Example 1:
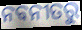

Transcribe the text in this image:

ନବନୀତରୁ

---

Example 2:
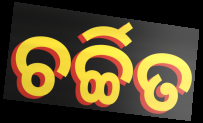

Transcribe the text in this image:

ଚର୍ଚ୍ଚିତ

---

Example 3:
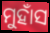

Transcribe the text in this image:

ମୁହାଁସ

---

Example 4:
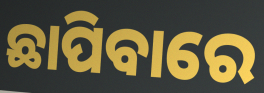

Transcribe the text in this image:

ଛାପିବାରେ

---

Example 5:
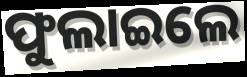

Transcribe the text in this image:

ଫୁଲାଇଲେ